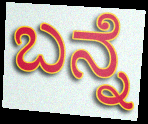
ಬನ್ನೆ